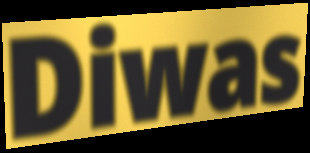
Diwas